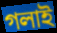
গলাই